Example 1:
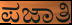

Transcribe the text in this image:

ಪಜಾತಿ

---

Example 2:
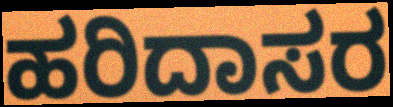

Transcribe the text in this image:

ಹರಿದಾಸರ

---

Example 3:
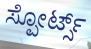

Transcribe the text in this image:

ಸ್ಪೋರ್ಟ್ಸ್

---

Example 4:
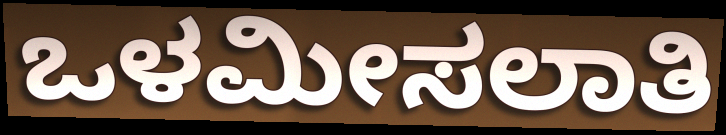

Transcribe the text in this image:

ಒಳಮೀಸಲಾತಿ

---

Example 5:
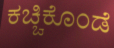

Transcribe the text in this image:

ಕಚ್ಚಿಕೊಂಡೆ